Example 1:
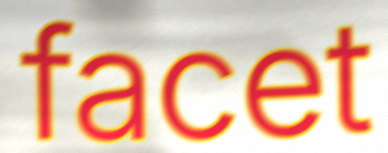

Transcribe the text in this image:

facet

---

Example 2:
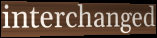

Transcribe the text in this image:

interchanged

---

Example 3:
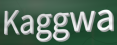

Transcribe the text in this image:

Kaggwa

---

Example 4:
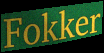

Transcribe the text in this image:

Fokker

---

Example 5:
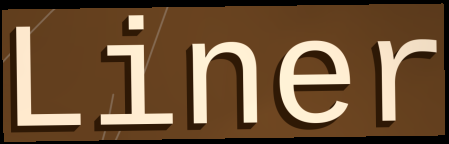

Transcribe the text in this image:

Liner